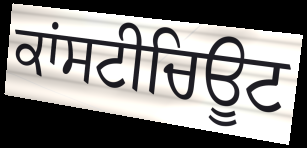
ਕਾਂਸਟੀਚਿਊਟ